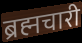
ब्रह्मचारी